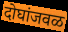
दोघांजवळ